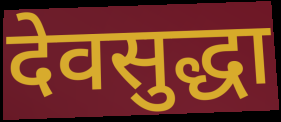
देवसुद्धा